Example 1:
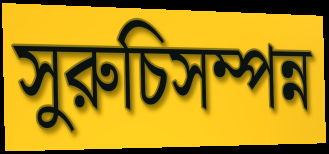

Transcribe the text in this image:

সুরুচিসম্পন্ন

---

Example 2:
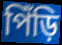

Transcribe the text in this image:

পিঁড়ি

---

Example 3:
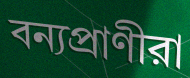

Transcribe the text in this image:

বন্যপ্রাণীরা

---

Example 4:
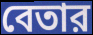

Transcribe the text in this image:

বেতার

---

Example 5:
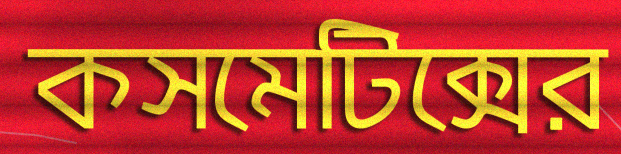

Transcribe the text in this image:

কসমেটিক্সের